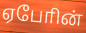
ஏபேரின்